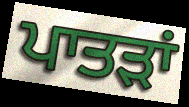
ਪਾਤੜਾਂ